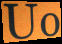
Uo